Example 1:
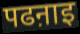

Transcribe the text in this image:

पढऩाइ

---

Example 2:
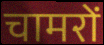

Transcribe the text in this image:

चामरों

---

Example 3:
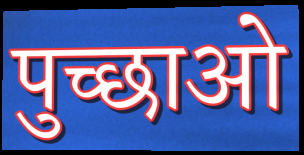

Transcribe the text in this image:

पुच्छाओ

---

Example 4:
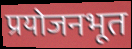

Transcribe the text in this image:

प्रयोजनभूत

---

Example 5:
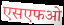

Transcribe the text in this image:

एसएफओ